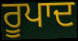
ਰੂਪਾਦ